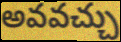
అవవచ్చు